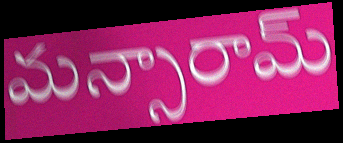
మన్సారామ్